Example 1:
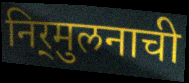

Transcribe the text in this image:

निर्मुलनाची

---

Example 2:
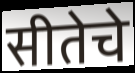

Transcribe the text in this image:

सीतेचे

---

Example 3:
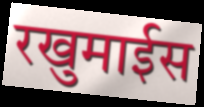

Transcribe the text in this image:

रखुमाईस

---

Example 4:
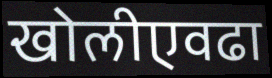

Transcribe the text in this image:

खोलीएवढा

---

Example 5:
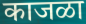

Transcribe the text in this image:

काजळा